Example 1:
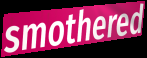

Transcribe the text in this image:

smothered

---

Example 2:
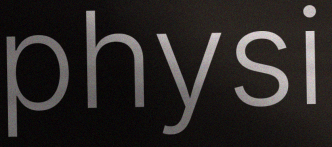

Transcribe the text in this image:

physi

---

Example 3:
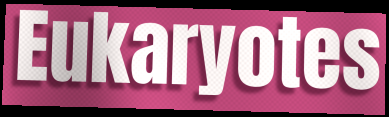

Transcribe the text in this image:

Eukaryotes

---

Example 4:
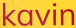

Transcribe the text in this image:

kavin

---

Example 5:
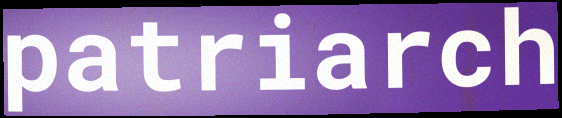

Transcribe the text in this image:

patriarch